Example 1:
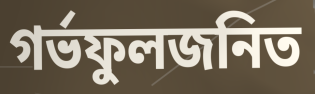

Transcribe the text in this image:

গর্ভফুলজনিত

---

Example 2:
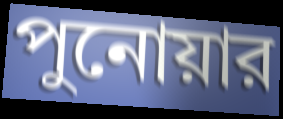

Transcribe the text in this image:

পুনোয়ার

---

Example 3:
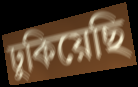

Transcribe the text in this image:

ঢুকিয়েছি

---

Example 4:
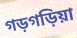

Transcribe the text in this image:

গড়গড়িয়া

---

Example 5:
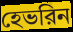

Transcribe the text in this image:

হেভরিন